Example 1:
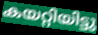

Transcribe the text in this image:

കയറ്റിയിട്ടു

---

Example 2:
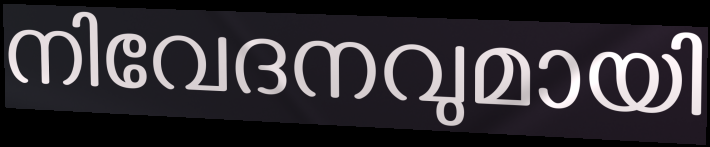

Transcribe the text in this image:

നിവേദനവുമായി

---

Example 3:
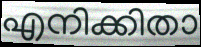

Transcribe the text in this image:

എനിക്കിതാ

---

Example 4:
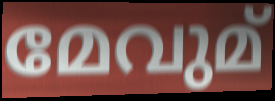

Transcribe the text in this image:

മേവുമ്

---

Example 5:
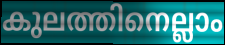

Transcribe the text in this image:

കുലത്തിനെല്ലാം